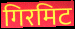
गिरमिट